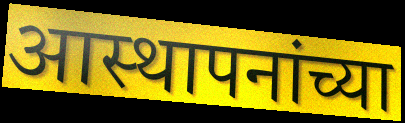
आस्थापनांच्या